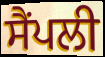
ਸੈਂਪਲੀ